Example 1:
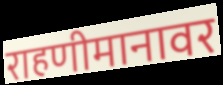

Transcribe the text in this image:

राहणीमानावर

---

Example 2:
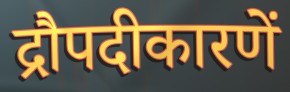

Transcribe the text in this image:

द्रौपदीकारणें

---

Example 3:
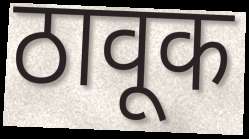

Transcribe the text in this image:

ठावूक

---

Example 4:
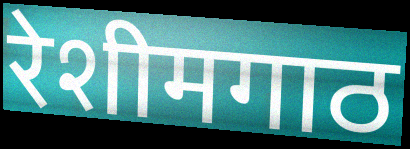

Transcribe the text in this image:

रेशीमगाठ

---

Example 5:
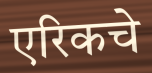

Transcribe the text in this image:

एरिकचे